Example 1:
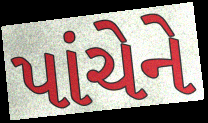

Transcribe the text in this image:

પાંચેને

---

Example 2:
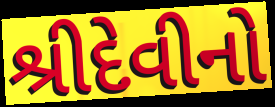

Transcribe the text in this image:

શ્રીદેવીનો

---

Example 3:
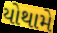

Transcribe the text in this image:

યોથામે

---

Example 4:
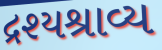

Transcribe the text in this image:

દ્રશ્યશ્રાવ્ય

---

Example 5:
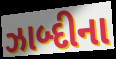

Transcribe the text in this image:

ઝાબ્દીના